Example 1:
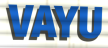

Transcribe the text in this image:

VAYU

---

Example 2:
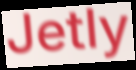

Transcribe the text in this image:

Jetly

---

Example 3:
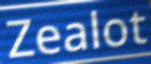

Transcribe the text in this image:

Zealot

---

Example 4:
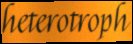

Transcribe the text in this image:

heterotroph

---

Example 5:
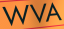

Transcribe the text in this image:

WVA